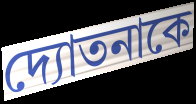
দ্যোতনাকে